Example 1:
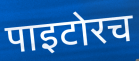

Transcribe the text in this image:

पाइटोरच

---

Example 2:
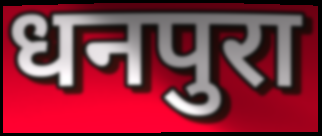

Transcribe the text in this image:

धनपुरा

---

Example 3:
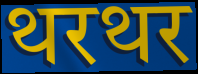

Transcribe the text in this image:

थरथर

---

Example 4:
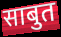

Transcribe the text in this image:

साबुत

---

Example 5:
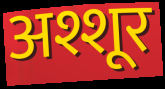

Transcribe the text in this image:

अश्शूर